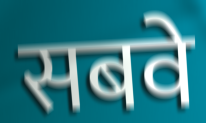
सबवे